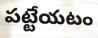
పట్టేయటం